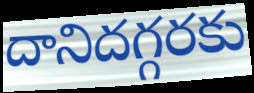
దానిదగ్గరకు